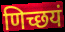
णिच्छयं